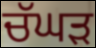
ਚੱਘੜ